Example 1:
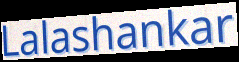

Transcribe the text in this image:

Lalashankar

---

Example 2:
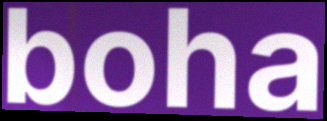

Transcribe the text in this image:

boha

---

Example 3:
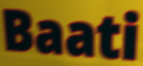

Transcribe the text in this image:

Baati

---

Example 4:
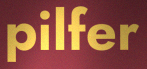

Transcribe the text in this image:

pilfer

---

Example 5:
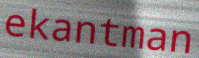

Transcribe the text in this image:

ekantman